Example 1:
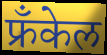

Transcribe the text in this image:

फ्रँकेल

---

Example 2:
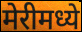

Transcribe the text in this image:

मेरीमध्ये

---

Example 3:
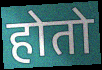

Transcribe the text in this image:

होतो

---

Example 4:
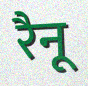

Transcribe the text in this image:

रैनू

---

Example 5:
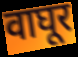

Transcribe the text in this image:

वाघूर